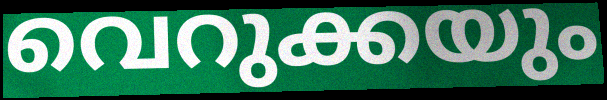
വെറുക്കയും